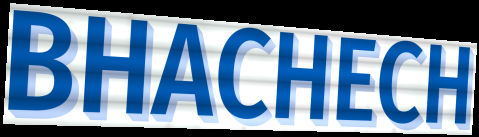
BHACHECH